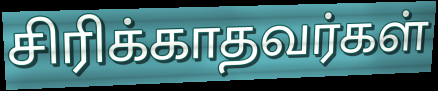
சிரிக்காதவர்கள்